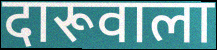
दारूवाला